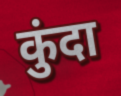
कुंदा